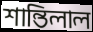
শান্তিলাল